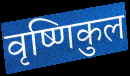
वृष्णिकुल